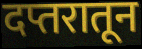
दप्तरातून